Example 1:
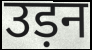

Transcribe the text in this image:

उड़न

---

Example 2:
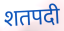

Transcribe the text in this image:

शतपदी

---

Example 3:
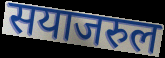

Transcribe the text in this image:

सयाजरुल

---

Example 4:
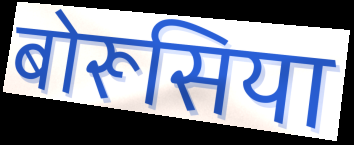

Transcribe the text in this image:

बोरूसिया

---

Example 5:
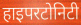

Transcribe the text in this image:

हाइपरटोनिटी